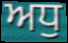
ਅਧੁ